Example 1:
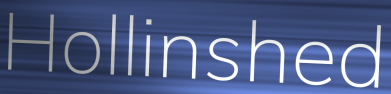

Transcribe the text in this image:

Hollinshed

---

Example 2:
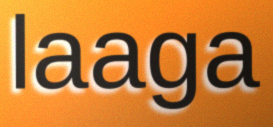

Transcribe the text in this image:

laaga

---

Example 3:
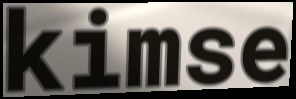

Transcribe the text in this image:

kimse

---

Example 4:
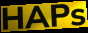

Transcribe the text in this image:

HAPs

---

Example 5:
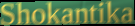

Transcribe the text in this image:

Shokantika